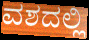
ವಶದಲ್ಲಿ